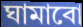
ঘামাবো